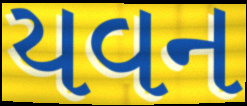
યવન